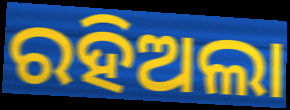
ରହିଅଲା